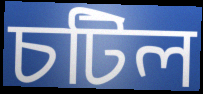
চটিল